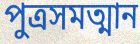
পুত্রসমত্মান